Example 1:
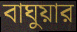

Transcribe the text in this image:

বাঘুয়ার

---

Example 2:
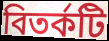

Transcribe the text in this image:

বিতর্কটি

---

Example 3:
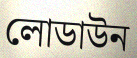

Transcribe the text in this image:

লোডাউন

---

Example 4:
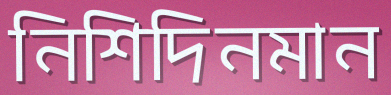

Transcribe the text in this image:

নিশিদিনমান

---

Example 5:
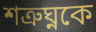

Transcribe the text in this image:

শত্রুঘ্নকে